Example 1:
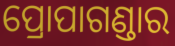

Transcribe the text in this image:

ପ୍ରୋପାଗଣ୍ଡାର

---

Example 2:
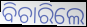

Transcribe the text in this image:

ବିଚାରିଲେ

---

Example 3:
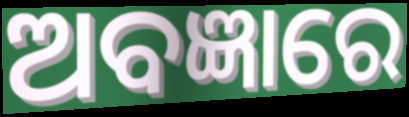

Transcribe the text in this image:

ଅବଜ୍ଞାରେ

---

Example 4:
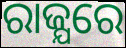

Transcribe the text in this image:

ରାଜ୍ଯରେ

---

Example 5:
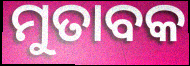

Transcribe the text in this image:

ମୁତାବକ